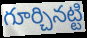
గూర్చినట్టి